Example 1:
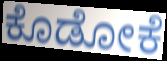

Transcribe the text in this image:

ಕೊಡೋಕೆ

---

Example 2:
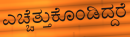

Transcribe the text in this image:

ಎಚ್ಚೆತ್ತುಕೊಂಡಿದ್ದರೆ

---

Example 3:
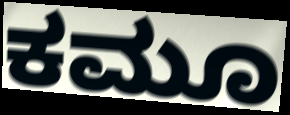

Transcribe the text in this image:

ಕಮೂ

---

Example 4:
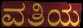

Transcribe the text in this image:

ವತಿಯ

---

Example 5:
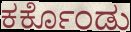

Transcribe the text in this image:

ಕರ್ಕೊಂಡು